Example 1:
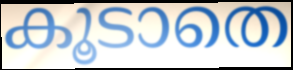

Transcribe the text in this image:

കൂടാതെ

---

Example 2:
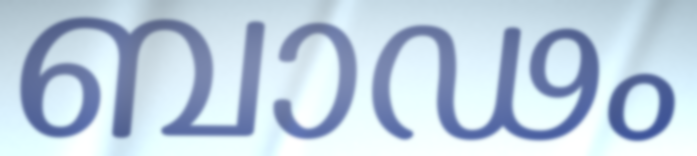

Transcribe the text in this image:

ബാഢം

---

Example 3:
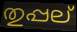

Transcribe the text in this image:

തുപ്പല്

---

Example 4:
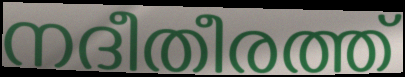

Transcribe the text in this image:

നദീതീരത്ത്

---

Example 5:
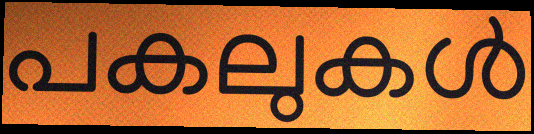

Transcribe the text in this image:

പകലുകൾ